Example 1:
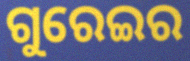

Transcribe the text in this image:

ଗୁରେଇର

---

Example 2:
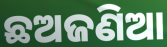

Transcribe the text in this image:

ଛଅଜଣିଆ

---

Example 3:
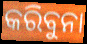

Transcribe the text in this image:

କରିବୁନା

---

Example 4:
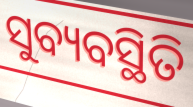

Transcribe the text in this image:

ସୁବ୍ୟବସ୍ଥିତି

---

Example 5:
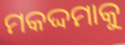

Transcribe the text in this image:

ମକଦ୍ଦମାକୁ